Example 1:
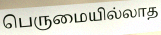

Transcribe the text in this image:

பெருமையில்லாத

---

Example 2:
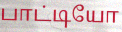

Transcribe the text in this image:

பாட்டியோ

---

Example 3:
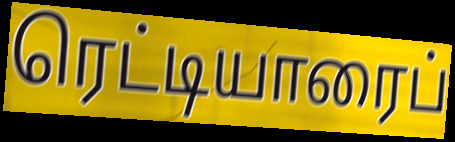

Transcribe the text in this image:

ரெட்டியாரைப்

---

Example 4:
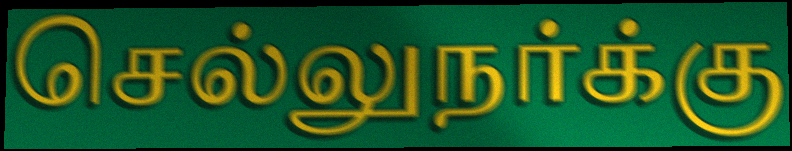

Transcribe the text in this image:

செல்லுநர்க்கு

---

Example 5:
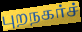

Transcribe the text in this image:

புறநகர்ச்